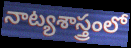
నాట్యశాస్త్రంలో